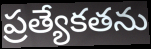
ప్రత్యేకతను